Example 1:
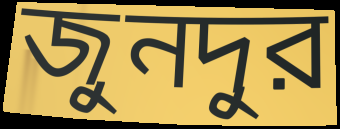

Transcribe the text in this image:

জুনদুর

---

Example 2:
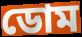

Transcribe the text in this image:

ডোম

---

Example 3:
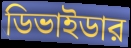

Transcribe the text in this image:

ডিভাইডার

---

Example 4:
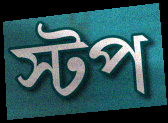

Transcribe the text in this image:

স্টপ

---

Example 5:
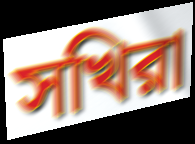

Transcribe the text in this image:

সখিরা